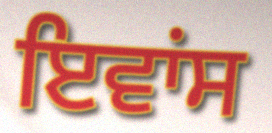
ਇਵਾਂਸ